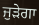
ਜੁੜੇਗਾ